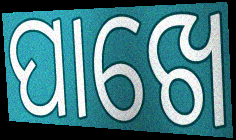
ପାଖେ